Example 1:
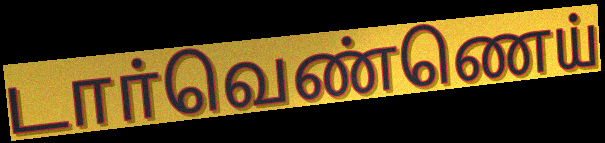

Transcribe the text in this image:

டார்வெண்ணெய்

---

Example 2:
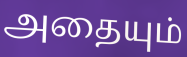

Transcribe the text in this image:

அதையும்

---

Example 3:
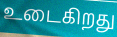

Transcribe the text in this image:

உடைகிறது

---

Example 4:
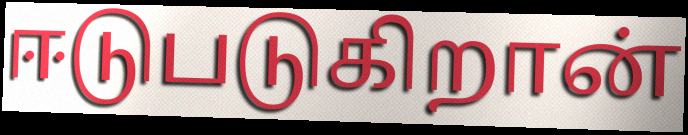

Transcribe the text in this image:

ஈடுபடுகிறான்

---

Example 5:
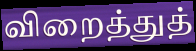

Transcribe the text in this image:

விறைத்துத்